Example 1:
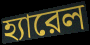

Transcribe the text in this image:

হ্যারেল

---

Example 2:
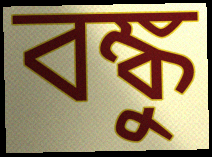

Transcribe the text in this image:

বঙ্কু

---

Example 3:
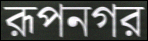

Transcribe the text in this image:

রূপনগর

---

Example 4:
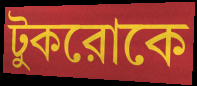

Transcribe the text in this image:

টুকরোকে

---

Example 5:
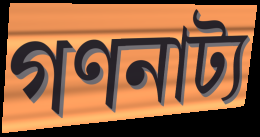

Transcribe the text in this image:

গণনাট্য